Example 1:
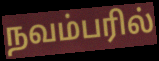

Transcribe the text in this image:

நவம்பரில்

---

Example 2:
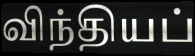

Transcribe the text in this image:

விந்தியப்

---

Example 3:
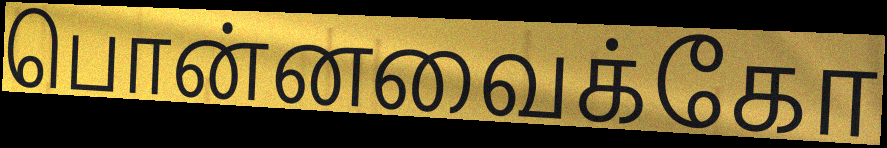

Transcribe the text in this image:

பொன்னவைக்கோ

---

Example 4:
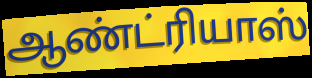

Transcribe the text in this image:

ஆண்ட்ரியாஸ்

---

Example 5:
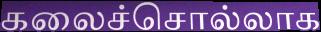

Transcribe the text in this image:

கலைச்சொல்லாக